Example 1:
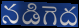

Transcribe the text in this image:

నడిగెద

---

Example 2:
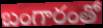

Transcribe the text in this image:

బంగారంతో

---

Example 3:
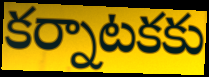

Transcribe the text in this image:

కర్నాటకకు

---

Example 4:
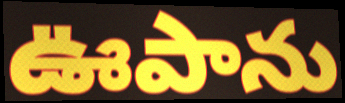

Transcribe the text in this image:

ఊపాను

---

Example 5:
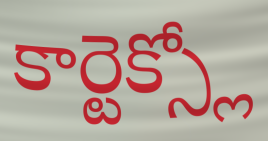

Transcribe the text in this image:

కార్టెక్స్లో